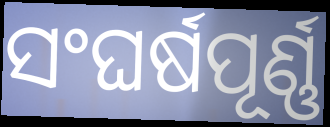
ସଂଘର୍ଷପୂର୍ଣ୍ଣ